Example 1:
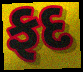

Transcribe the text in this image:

ફદ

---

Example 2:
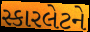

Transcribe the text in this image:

સ્કારલેટને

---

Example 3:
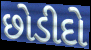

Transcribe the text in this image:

છોડીદો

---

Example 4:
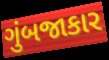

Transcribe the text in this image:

ગુંબજાકાર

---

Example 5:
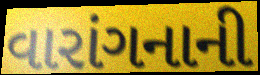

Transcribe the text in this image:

વારાંગનાની